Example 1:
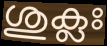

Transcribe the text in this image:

ശുക്ലഃ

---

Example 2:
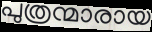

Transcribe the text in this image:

പുത്രന്മാരായ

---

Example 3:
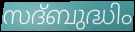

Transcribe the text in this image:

സദ്ബുദ്ധിം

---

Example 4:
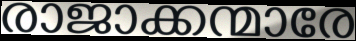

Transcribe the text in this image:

രാജാക്കന്മാരേ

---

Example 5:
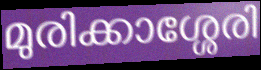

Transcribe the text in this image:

മുരിക്കാശ്ശേരി